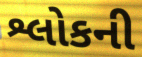
શ્લોકની